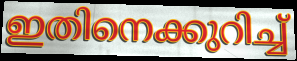
ഇതിനെക്കുറിച്ച്